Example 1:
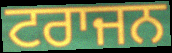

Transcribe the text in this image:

ਟਰਾਜਨ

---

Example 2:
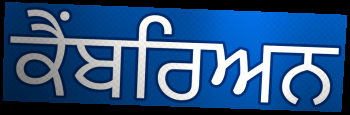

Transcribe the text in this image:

ਕੈਂਬਰਿਅਨ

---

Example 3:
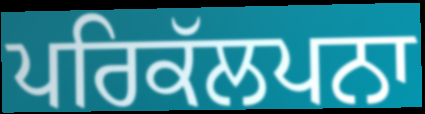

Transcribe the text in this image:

ਪਰਿਕੱਲਪਨਾ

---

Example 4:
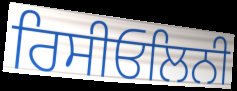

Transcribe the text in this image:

ਰਿਸੀਓਲਿਨੀ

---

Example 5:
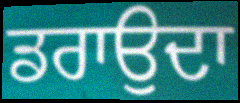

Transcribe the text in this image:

ਡਰਾਉਦਾ